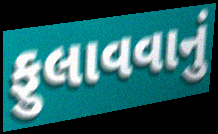
ફુલાવવાનું